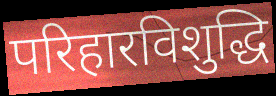
परिहारविशुद्धि